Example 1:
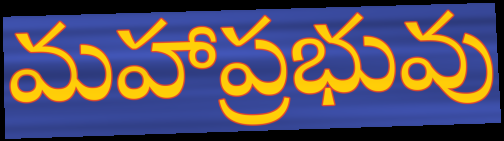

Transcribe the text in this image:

మహాప్రభువు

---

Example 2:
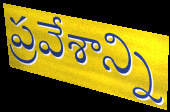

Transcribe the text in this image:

ప్రవేశాన్ని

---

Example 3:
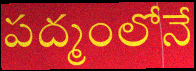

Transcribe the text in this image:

పద్మంలోనే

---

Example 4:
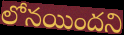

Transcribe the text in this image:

లోనయిందని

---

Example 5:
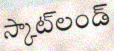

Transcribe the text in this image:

స్కాట్‌లండ్